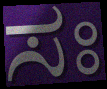
ಸಃ